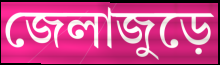
জেলাজুড়ে